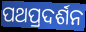
ପଥପ୍ରଦର୍ଶନ